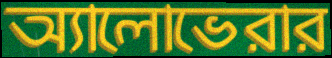
অ্যালোভেরার